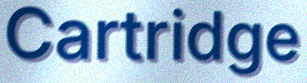
Cartridge